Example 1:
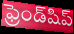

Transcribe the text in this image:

ఫ్రెండ్‌షిప్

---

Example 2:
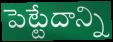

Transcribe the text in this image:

పెట్టేదాన్ని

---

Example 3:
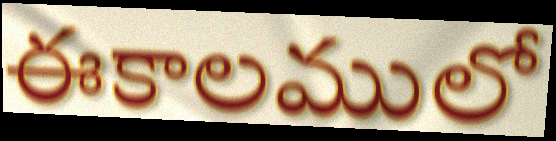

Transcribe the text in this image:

ఈకాలములో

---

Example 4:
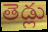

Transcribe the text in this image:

తెడ్లు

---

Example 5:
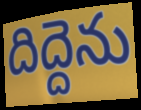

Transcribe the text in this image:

దిద్దెను